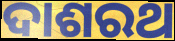
ଦାଶରଥ